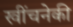
खींचनेकी